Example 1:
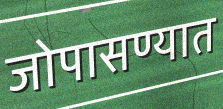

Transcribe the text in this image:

जोपासण्यात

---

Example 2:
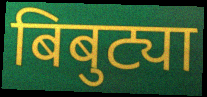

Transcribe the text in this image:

बिबुट्या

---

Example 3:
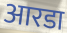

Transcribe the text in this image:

आरडा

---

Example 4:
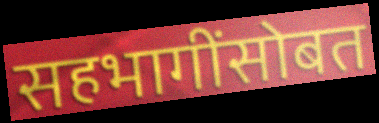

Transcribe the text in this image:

सहभागींसोबत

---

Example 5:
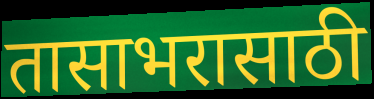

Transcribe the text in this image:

तासाभरासाठी